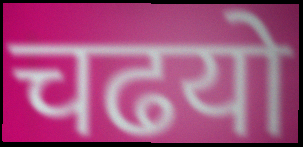
चढयो